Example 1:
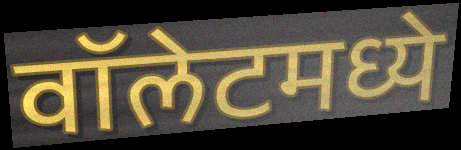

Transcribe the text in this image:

वॉलेटमध्ये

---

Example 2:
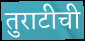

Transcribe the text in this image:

तुराटीची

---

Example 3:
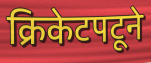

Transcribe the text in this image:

क्रिकेटपटूने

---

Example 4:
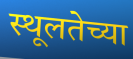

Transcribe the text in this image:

स्थूलतेच्या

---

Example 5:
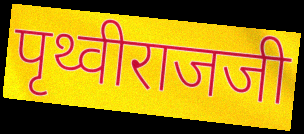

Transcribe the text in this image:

पृथ्वीराजजी